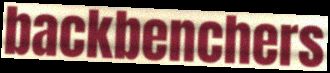
backbenchers